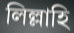
লিল্লাহি